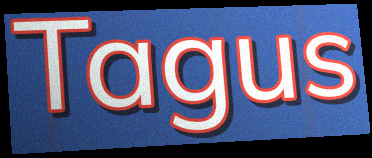
Tagus